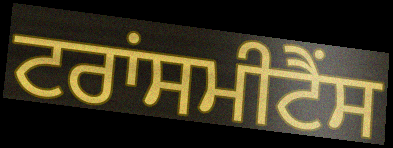
ਟਰਾਂਸਮੀਟੈਂਸ